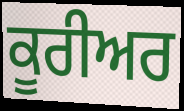
ਕੂਰੀਅਰ